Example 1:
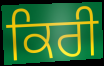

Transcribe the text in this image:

ਕਿਰੀ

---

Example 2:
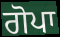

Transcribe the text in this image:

ਗੋਪਾ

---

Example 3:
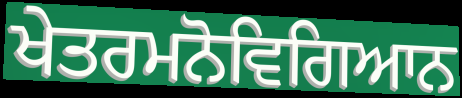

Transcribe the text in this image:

ਖੇਤਰਮਨੋਵਿਗਿਆਨ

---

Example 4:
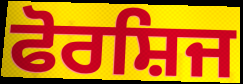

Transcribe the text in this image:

ਫੋਰਸ਼ਿਜ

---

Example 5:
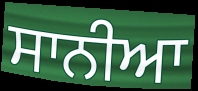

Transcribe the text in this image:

ਸਾਨੀਆ